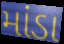
માંડા